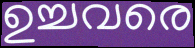
ഉച്ചവരെ